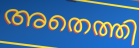
അതെത്തി